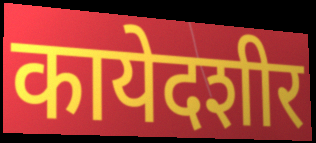
कायेदशीर